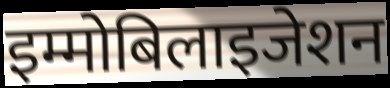
इम्मोबिलाइजेशन